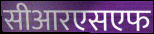
सीआरएसएफ